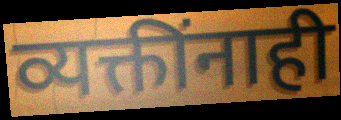
व्यक्तींनाही